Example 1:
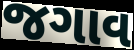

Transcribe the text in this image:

જગાવ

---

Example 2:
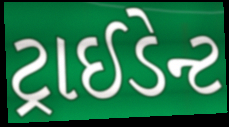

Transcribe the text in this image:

ટ્રાઈડેન્ટ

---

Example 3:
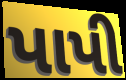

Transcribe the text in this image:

પાપી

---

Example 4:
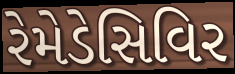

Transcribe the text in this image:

રેમેડેસિવિર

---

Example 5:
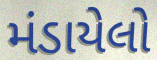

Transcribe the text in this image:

મંડાયેલો